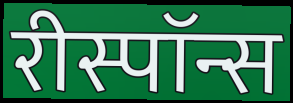
रीस्पॉन्स